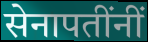
सेनापतींनीं